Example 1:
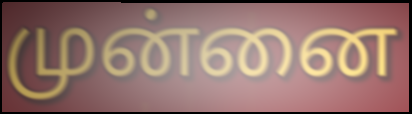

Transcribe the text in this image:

முன்னை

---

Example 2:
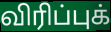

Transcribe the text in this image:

விரிப்புக்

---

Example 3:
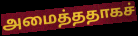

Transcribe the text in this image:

அமைத்ததாகச்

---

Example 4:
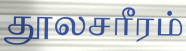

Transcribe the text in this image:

தூலசரீரம்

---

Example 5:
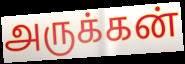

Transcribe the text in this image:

அருக்கன்